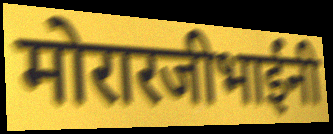
मोरारजीभाईंनी